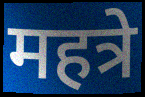
महत्रे